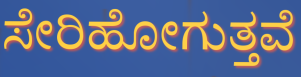
ಸೇರಿಹೋಗುತ್ತವೆ